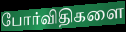
போர்விதிகளை